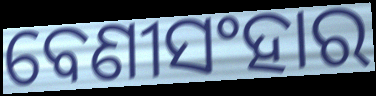
ବେଣୀସଂହାର